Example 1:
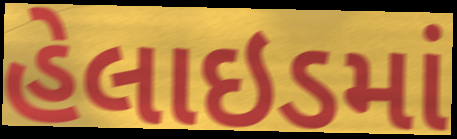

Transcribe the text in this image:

હેલાઇડમાં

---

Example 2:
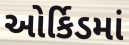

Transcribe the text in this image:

ઓર્કિડમાં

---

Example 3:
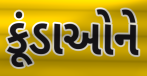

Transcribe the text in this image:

કૂંડાઓને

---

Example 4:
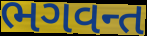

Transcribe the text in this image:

ભગવન્ત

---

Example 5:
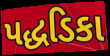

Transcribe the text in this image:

પદ્ધડિકા